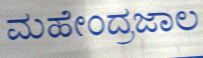
ಮಹೇಂದ್ರಜಾಲ